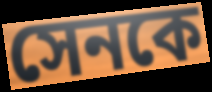
সেনকে